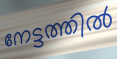
നേട്ടത്തിൽ